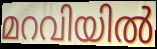
മറവിയിൽ